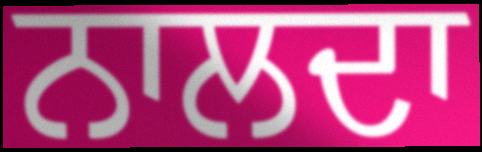
ਨਾਲਦਾ